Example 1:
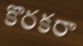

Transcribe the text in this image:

కొరకరా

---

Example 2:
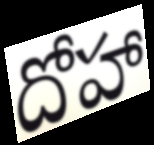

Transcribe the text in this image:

దోహా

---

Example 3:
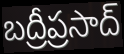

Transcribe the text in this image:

బద్రీప్రసాద్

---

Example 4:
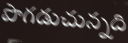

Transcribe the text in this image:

పొగడుచున్నది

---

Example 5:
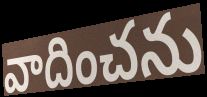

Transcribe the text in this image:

వాదించను